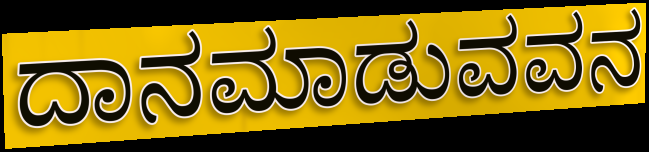
ದಾನಮಾಡುವವನ